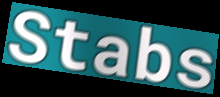
Stabs